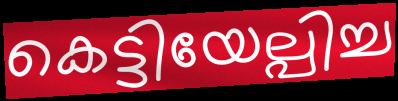
കെട്ടിയേല്പിച്ച